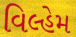
વિલ્હેમ